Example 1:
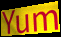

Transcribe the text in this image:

Yum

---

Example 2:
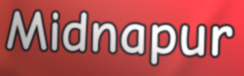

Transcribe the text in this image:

Midnapur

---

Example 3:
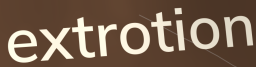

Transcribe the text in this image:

extrotion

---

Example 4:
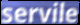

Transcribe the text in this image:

servile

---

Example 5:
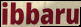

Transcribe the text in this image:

ibbaru